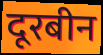
दूरबीन